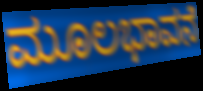
ಮೂಲಭಾವನೆ